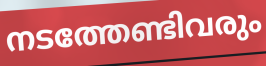
നടത്തേണ്ടിവരും